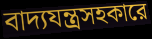
বাদ্যযন্ত্রসহকারে